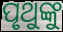
ପୃଥୁଙ୍କୁ